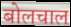
बोलचाल